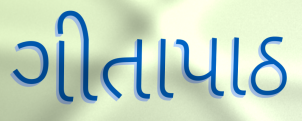
ગીતાપાઠ